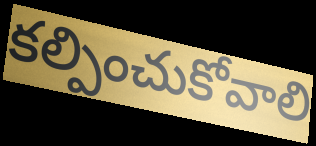
కల్పించుకోవాలి